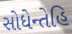
સોધેન્તેહિ